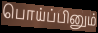
பொய்ப்பினும்